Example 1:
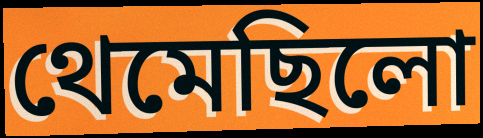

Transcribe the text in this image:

থেমেছিলো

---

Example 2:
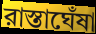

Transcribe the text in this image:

রাস্তাঘেঁষা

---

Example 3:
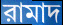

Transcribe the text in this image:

রামাদ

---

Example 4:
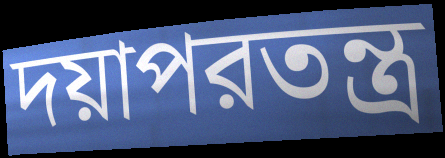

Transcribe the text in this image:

দয়াপরতন্ত্র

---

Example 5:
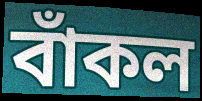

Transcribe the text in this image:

বাঁকল